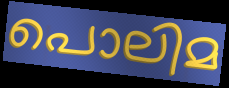
പൊലിമ